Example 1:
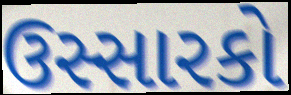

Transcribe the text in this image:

ઉસ્સારકો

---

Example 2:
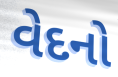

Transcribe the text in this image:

વેદનો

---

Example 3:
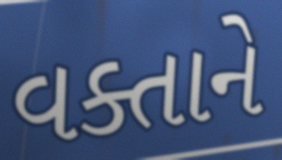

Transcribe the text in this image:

વક્તાને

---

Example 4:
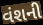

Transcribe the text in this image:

વંશની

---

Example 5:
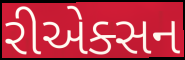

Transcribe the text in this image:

રીએક્સન